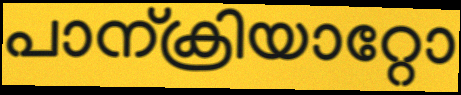
പാന്ക്രിയാറ്റോ